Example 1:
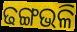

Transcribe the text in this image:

ଢଙ୍ଗଭଳି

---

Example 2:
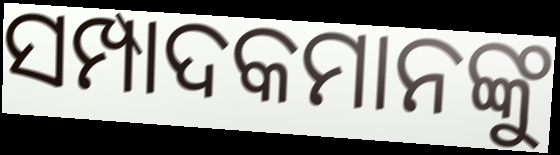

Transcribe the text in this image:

ସମ୍ପାଦକମାନଙ୍କୁ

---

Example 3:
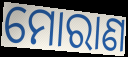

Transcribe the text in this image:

ମୋରାଣ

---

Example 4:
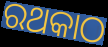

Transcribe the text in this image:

ରଥକାଠ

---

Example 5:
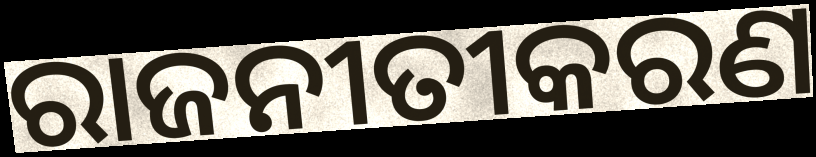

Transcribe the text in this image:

ରାଜନୀତୀକରଣ